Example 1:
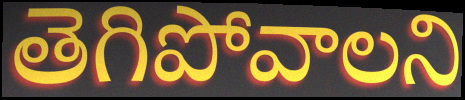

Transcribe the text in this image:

తెగిపోవాలని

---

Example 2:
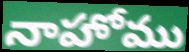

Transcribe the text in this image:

నాహోము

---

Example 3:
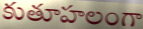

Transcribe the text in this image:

కుతూహలంగా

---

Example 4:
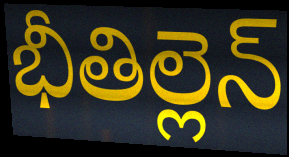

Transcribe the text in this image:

భీతిల్లెన్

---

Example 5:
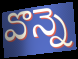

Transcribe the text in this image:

వొన్నె